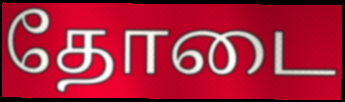
தோடை